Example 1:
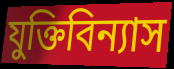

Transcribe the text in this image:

যুক্তিবিন্যাস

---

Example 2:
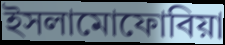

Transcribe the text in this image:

ইসলামোফোবিয়া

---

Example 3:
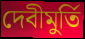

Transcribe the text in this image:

দেবীমুর্তি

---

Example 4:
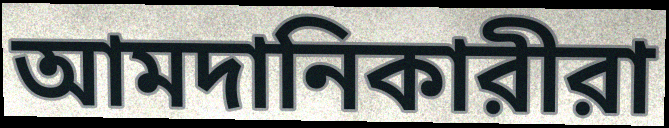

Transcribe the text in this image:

আমদানিকারীরা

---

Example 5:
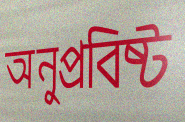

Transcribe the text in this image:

অনুপ্রবিষ্ট